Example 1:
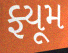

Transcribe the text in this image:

ફ્યૂમ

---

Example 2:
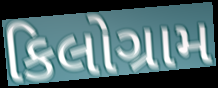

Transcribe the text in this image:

કિલોગ્રામ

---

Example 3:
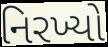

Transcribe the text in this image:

નિરખ્યો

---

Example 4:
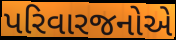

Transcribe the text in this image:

પરિવારજનોએ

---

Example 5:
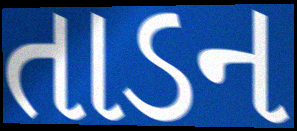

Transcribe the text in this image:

તાડન